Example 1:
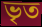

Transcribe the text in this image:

ভৃত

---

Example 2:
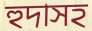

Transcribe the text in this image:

হুদাসহ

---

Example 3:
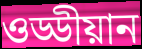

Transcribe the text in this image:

ওড্ডীয়ান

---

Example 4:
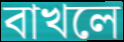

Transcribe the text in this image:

বাখলে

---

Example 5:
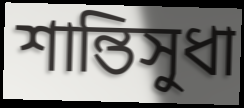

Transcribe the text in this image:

শান্তিসুধা